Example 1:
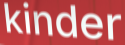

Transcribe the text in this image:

kinder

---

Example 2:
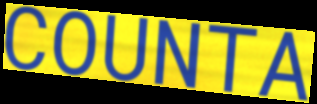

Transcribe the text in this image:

COUNTA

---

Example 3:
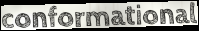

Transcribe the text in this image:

conformational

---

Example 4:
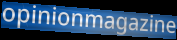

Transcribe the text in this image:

opinionmagazine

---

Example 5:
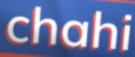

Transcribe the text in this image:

chahi